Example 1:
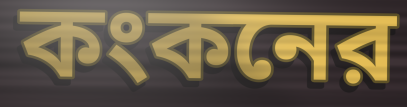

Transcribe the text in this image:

কংকনের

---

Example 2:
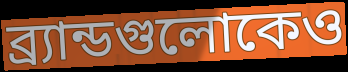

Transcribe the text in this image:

ব্র্যান্ডগুলোকেও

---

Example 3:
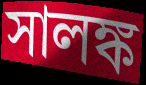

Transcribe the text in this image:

সালঙ্ক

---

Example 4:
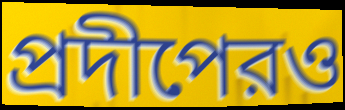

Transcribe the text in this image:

প্রদীপেরও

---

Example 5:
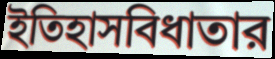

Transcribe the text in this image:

ইতিহাসবিধাতার